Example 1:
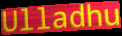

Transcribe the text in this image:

Ulladhu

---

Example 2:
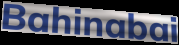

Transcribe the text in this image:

Bahinabai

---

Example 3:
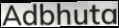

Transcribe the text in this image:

Adbhuta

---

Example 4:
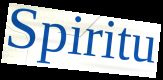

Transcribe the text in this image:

Spiritu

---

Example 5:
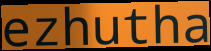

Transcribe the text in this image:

ezhutha